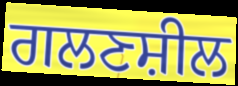
ਗਲਣਸ਼ੀਲ